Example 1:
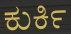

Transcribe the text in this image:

ಕುರ್ಕಿ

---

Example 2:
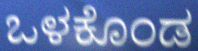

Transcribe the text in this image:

ಒಳಕೊಂಡ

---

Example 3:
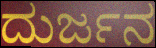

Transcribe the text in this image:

ದುರ್ಜನ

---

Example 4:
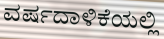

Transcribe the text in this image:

ವರ್ಷದಾಳಿಕೆಯಲ್ಲಿ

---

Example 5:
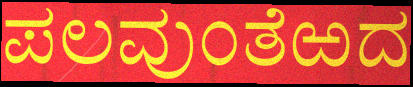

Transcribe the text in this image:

ಪಲವುಂತೆಱದ